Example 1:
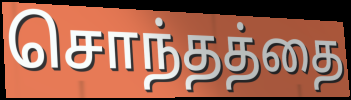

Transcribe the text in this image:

சொந்தத்தை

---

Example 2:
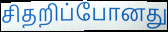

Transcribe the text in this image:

சிதறிப்போனது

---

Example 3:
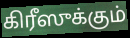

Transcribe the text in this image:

கிரீஸுக்கும்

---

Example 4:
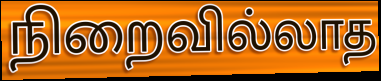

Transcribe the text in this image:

நிறைவில்லாத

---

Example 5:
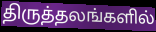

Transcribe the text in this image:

திருத்தலங்களில்